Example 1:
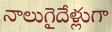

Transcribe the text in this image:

నాలుగైదేళ్లుగా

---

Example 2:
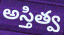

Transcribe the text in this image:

అస్తిత్వ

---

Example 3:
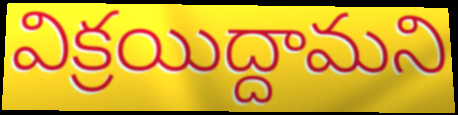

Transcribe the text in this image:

విక్రయిద్దామని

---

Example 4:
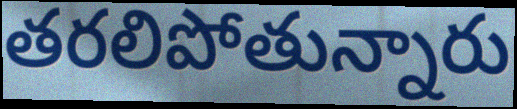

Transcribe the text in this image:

తరలిపోతున్నారు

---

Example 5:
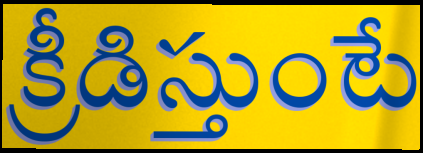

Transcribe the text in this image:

క్రీడిస్తుంటే